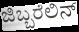
ಜಿಬ್ಬರೆಲಿನ್